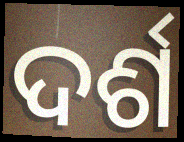
ଦର୍ଶ